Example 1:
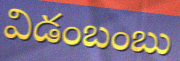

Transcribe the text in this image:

విడంబంబు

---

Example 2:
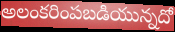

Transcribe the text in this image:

అలంకరింపబడియున్నదో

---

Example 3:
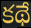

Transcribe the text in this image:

కథే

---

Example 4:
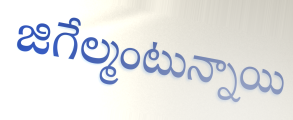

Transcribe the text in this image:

జిగేల్మంటున్నాయి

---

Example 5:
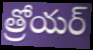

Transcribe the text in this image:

త్రోయర్